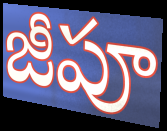
జీపూ